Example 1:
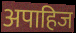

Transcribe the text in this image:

अपाहिज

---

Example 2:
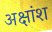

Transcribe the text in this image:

अक्षांश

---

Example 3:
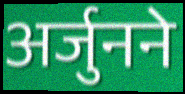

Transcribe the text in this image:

अर्जुनने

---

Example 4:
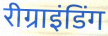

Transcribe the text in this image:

रीग्राइंडिंग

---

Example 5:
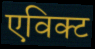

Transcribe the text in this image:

एविक्ट